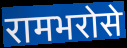
रामभरोसे